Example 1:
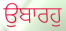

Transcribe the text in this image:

ਉਬਾਰਹੁ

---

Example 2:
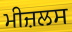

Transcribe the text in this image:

ਮੀਜ਼ਲਸ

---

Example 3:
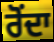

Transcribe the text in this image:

ਰੋਂਦਾ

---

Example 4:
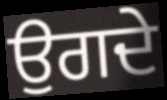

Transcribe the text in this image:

ਉਗਦੇ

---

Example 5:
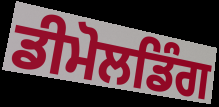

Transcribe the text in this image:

ਡੀਮੋਲਡਿੰਗ